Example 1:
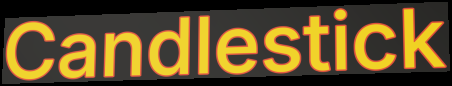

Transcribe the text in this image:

Candlestick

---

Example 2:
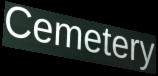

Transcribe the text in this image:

Cemetery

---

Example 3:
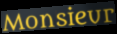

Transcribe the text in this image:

Monsieur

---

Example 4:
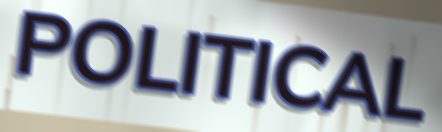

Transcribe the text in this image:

POLITICAL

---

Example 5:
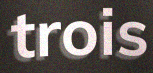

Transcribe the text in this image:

trois